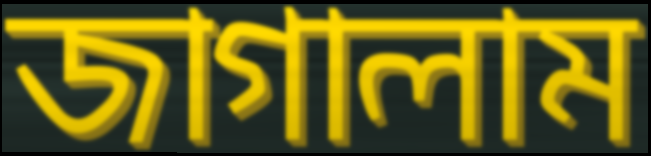
জাগালাম